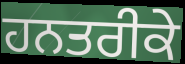
ਹਨਤਰੀਕੇ